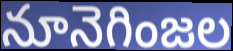
నూనెగింజల